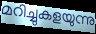
മറിച്ചുകളയുന്നു